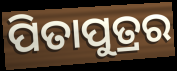
ପିତାପୁତ୍ରର